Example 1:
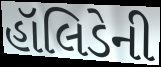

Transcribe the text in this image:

હૉલિડેની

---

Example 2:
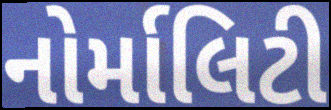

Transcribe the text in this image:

નોર્માલિટી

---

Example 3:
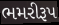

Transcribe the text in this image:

ભમરીરૂપ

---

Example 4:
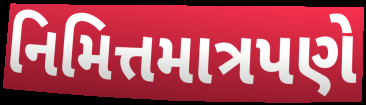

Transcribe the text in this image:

નિમિત્તમાત્રપણે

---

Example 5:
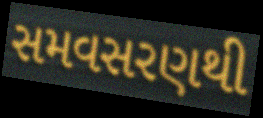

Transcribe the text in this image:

સમવસરણથી